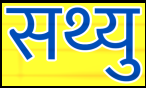
सथ्यु